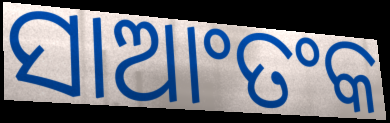
ସାଆଂତଂକ